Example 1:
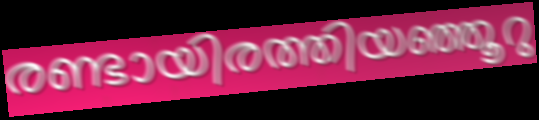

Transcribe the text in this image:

രണ്ടായിരത്തിയഞ്ഞൂറു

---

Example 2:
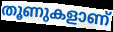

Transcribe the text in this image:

തൂണുകളാണ്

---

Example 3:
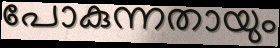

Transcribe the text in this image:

പോകുന്നതായും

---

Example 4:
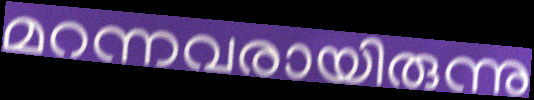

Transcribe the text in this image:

മറന്നവരായിരുന്നു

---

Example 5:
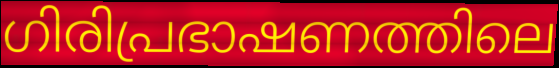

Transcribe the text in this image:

ഗിരിപ്രഭാഷണത്തിലെ